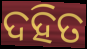
ଦହିତ